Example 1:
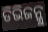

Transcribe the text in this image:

ଡିଭିଜନ୍କୁ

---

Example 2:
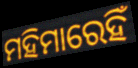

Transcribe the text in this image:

ମହିମାରେହିଁ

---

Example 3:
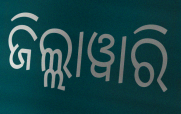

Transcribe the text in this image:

ଜିଲ୍ଲାୱାରି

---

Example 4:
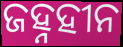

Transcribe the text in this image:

ଜହ୍ନହୀନ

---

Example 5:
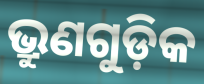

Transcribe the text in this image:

ଭ୍ରୁଣଗୁଡ଼ିକ